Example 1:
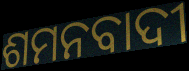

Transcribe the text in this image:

ଶମନବାଦୀ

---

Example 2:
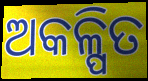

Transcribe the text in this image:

ଅକଳ୍ପିତ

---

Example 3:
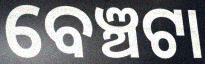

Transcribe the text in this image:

ବେଞ୍ଚଟା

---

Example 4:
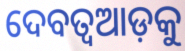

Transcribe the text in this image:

ଦେବତ୍ୱଆଡ଼କୁ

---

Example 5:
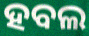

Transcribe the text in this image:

ହବଲ